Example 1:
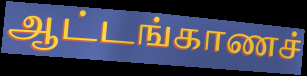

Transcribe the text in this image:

ஆட்டங்காணச்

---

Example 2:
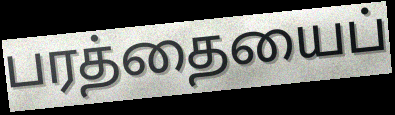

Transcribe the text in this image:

பரத்தையைப்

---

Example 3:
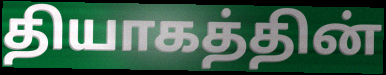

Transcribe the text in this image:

தியாகத்தின்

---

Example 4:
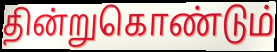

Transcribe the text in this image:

தின்றுகொண்டும்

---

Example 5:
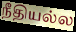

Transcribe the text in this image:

நீதியல்ல